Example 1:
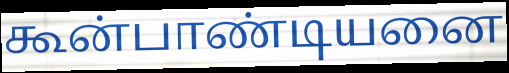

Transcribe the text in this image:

கூன்பாண்டியனை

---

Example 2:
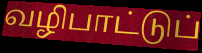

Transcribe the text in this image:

வழிபாட்டுப்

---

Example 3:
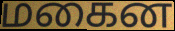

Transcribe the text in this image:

மகைன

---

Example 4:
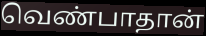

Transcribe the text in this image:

வெண்பாதான்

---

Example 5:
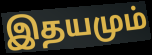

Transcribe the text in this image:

இதயமும்